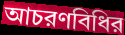
আচরণবিধির